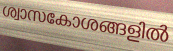
ശ്വാസകോശങ്ങളിൽ